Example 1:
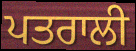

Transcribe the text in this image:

ਪਤਰਾਲੀ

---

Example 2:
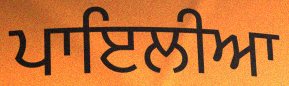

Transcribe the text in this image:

ਪਾਇਲੀਆ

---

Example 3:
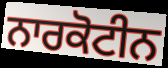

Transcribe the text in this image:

ਨਾਰਕੋਟੀਨ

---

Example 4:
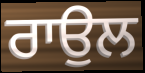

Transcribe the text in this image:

ਰਾਉਲ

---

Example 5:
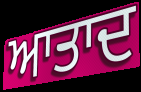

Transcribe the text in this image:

ਆਤਾਦ